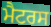
ਮੈਟਰਸ